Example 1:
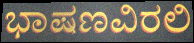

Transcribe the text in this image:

ಭಾಷಣವಿರಲಿ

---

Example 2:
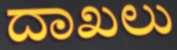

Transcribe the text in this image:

ದಾಖಲು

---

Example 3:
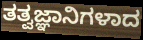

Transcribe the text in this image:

ತತ್ವಜ್ಞಾನಿಗಳಾದ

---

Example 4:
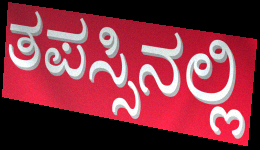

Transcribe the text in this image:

ತಪಸ್ಸಿನಲ್ಲಿ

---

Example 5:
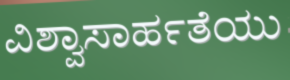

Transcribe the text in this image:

ವಿಶ್ವಾಸಾರ್ಹತೆಯು